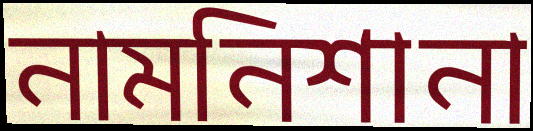
নামনিশানা